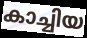
കാച്ചിയ